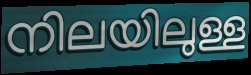
നിലയിലുള്ള